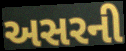
અસરની